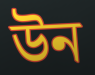
উন